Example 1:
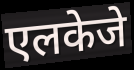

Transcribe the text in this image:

एलकेजे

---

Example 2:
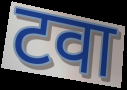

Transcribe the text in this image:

टवा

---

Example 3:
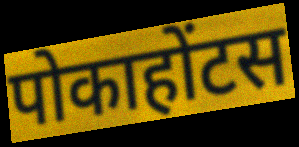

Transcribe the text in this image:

पोकाहोंटस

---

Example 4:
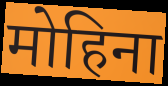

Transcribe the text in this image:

मोहिना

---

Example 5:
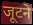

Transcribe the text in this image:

जूटने